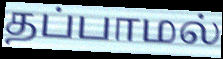
தப்பாமல்